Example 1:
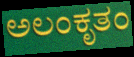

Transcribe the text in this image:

ಅಲಂಕೃತಂ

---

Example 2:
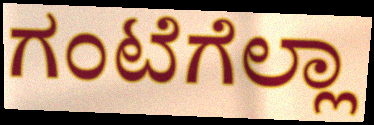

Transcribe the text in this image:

ಗಂಟೆಗೆಲ್ಲಾ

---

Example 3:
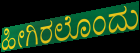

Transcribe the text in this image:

ಹೀಗಿರಲೊಂದು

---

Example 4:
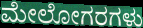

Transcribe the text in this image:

ಮೇಲೋಗರಗಳು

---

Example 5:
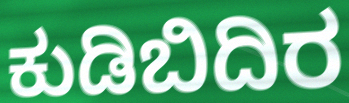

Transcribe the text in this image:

ಕುಡಿಬಿದಿರ